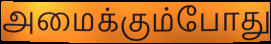
அமைக்கும்போது